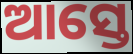
ଆସ୍ତେ